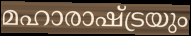
മഹാരാഷ്ട്രയും